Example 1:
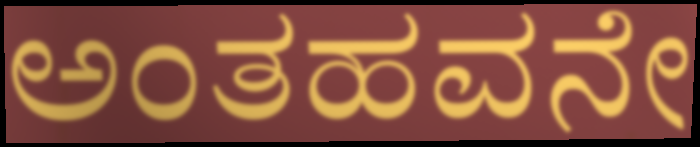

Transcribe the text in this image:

ಅಂತಹವನೇ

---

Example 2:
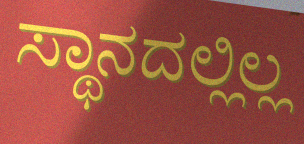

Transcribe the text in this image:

ಸ್ಥಾನದಲ್ಲಿಲ್ಲ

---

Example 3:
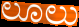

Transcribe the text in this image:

ಲೂಲು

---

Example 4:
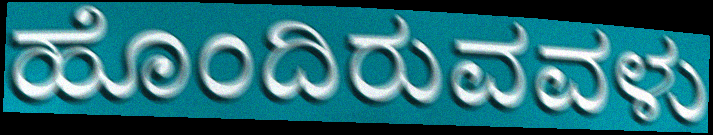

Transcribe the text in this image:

ಹೊಂದಿರುವವಳು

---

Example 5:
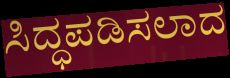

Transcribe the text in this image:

ಸಿದ್ಧಪಡಿಸಲಾದ